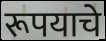
रूपयाचे